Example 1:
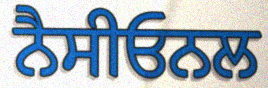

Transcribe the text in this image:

ਨੈਸੀਓਨਲ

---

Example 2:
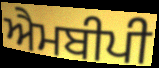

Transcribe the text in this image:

ਐਮਬੀਪੀ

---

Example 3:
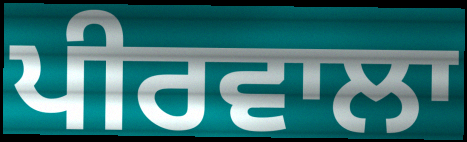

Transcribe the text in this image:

ਪੀਰਵਾਲਾ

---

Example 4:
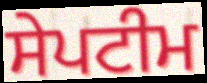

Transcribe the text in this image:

ਸੇਪਟੀਮ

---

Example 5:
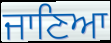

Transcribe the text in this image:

ਜਾਣਿਆ